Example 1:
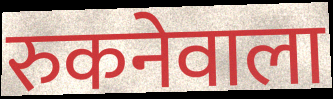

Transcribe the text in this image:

रुकनेवाला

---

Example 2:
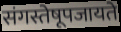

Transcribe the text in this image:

संगस्तेषूपजायते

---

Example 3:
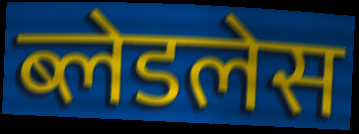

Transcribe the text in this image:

ब्लेडलेस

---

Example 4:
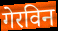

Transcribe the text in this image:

गेरविन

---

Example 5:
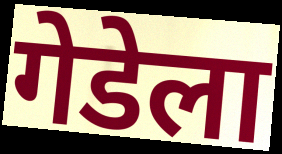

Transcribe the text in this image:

गेडेला